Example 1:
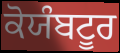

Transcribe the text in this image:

ਕੋਯੰਬਟੂਰ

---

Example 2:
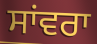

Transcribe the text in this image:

ਸਾਂਵਰਾ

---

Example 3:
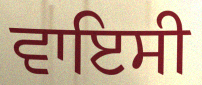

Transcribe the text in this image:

ਵਾਇਸੀ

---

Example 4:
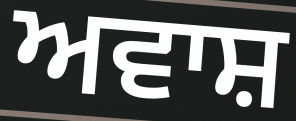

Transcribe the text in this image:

ਅਵਾਸ਼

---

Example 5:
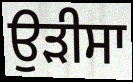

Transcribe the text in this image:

ਉੜੀਸਾ